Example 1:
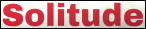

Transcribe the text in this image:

Solitude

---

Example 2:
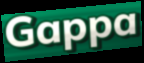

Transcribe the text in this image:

Gappa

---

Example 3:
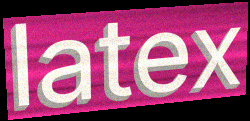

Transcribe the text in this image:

latex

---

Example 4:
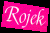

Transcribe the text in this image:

Rojek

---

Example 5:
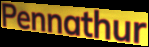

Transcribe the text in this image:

Pennathur